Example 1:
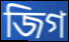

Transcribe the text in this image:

জিগ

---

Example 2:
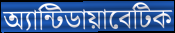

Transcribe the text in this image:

অ্যান্টিডায়াবেটিক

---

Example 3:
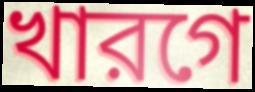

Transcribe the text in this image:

খারগে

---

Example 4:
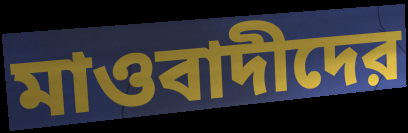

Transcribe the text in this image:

মাওবাদীদের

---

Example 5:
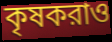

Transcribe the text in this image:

কৃষকরাও